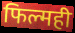
फिल्मही